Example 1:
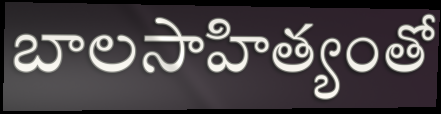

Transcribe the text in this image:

బాలసాహిత్యంతో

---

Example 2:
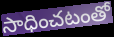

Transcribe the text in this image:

సాధించటంతో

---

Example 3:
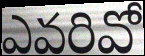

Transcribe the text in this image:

ఎవరివో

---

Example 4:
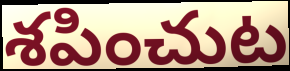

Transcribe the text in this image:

శపించుట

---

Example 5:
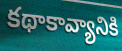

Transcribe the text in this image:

కథాకావ్యానికి